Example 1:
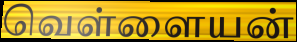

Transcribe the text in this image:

வெள்ளையன்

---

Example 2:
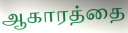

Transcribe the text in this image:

ஆகாரத்தை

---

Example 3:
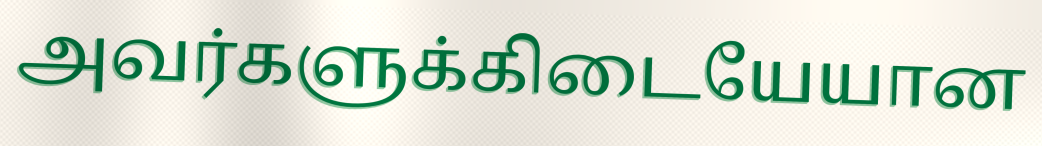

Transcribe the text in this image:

அவர்களுக்கிடையேயான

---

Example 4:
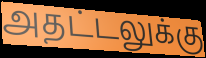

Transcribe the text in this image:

அதட்டலுக்கு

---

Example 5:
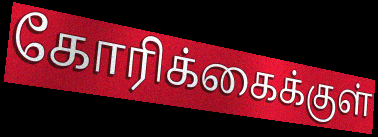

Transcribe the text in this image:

கோரிக்கைக்குள்